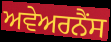
ਅਵੇਅਰਨੈਂਸ